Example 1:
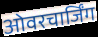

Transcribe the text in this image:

ओवरचार्जिंग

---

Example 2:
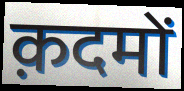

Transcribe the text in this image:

क़दमों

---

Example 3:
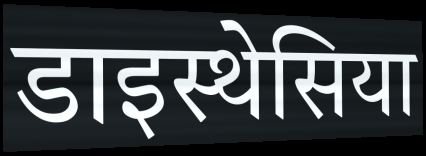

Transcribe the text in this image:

डाइस्थेसिया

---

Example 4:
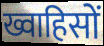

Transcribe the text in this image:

ख्वाहिसों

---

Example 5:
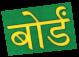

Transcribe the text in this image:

बोर्डं